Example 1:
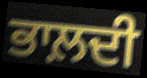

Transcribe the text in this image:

ਭਾਲ਼ਦੀ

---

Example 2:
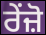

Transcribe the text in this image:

ਰੇਂਜ਼ੋ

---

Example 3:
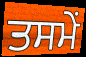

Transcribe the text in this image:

ਤਸਮੇਂ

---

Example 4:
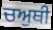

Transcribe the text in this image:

ਚਅੁਥੀ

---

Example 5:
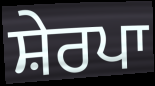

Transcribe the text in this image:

ਸ਼ੇਰਪਾ